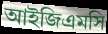
আইজিএমসি